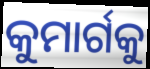
କୁମାର୍ଗକୁ